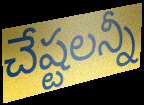
చేష్టలన్నీ